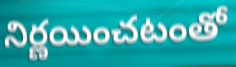
నిర్ణయించటంతో